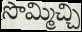
సొమ్మిచ్చి